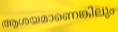
ആശയമാണെങ്കിലും